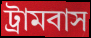
ট্রামবাস